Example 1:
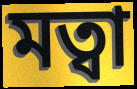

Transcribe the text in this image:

মত্বা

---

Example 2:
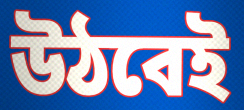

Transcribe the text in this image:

উঠবেই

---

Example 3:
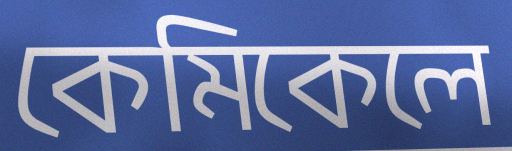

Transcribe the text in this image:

কেমিকেলে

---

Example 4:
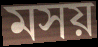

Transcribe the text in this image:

মসয়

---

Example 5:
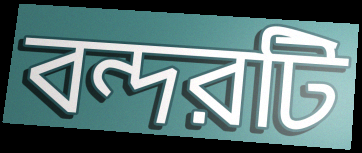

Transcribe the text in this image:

বন্দরটি